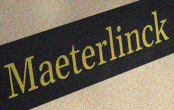
Maeterlinck